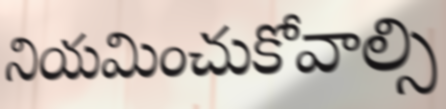
నియమించుకోవాల్సి